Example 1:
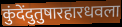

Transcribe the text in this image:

कुंदेंदुतुषारहारधवला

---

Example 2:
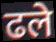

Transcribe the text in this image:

ढले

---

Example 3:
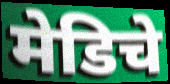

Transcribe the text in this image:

मेडिचे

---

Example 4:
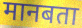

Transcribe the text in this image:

मानबता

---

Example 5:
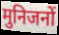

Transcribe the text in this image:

मुनिजनों